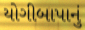
યોગીબાપાનું